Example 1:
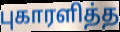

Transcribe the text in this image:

புகாரளித்த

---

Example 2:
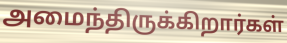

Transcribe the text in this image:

அமைந்திருக்கிறார்கள்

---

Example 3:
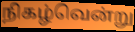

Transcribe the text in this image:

நிகழ்வென்று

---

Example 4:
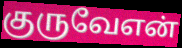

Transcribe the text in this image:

குருவேஎன்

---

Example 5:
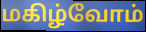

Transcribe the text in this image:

மகிழ்வோம்